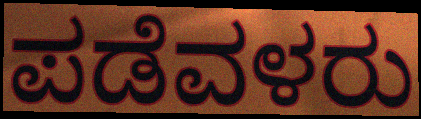
ಪಡೆವಳರು